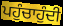
ਪਹੁੰਚਾਹੁੰਦੀ